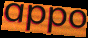
appo